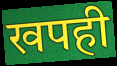
खपही